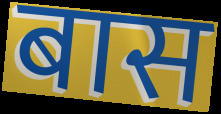
बास